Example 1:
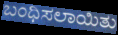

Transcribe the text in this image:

ಬಂಧಿಸಲಾಯಿತು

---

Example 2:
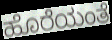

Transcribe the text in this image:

ಹೊರೆಯಂತೆ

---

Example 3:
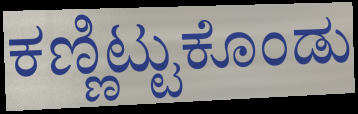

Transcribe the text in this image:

ಕಣ್ಣಿಟ್ಟುಕೊಂಡು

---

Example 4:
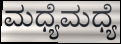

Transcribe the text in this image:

ಮಧ್ಯೆಮಧ್ಯೆ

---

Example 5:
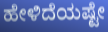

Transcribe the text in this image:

ಹೇಳಿದೆಯಷ್ಟೇ